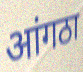
आंगठा